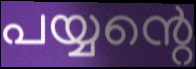
പയ്യന്റെ